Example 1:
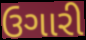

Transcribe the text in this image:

ઉગારી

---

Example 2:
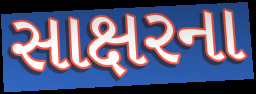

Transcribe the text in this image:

સાક્ષરના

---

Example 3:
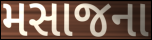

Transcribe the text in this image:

મસાજના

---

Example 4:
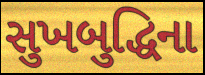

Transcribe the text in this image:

સુખબુદ્ધિના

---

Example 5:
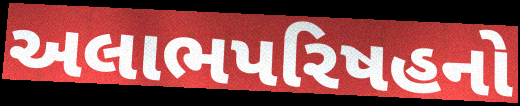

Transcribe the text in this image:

અલાભપરિષહનો